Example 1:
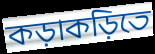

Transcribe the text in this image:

কড়াকড়িতে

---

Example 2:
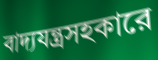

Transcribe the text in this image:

বাদ্যযন্ত্রসহকারে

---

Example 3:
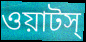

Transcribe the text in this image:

ওয়াটস্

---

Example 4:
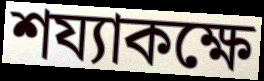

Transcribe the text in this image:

শয্যাকক্ষে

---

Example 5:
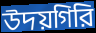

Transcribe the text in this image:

উদয়গিরি